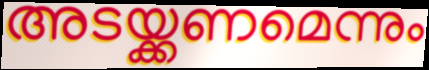
അടയ്ക്കണമെന്നും